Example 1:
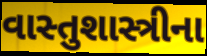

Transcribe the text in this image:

વાસ્તુશાસ્ત્રીના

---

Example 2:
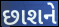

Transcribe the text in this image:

છાશને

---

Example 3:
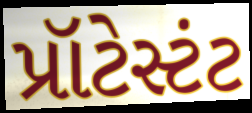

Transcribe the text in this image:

પ્રૉટેસ્ટંટ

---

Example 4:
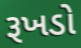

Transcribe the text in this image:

રૂખડો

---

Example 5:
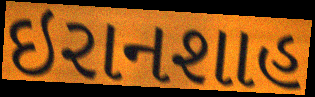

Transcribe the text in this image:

ઇરાનશાહ